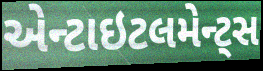
એન્ટાઇટલમેન્ટ્સ